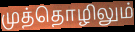
முத்தொழிலும்